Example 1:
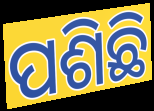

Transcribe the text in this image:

ପଶିଛି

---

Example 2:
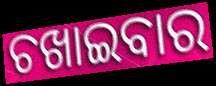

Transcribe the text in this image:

ଚଖାଇବାର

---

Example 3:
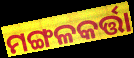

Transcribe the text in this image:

ମଙ୍ଗଳକର୍ତ୍ତା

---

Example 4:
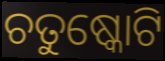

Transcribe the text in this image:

ଚତୁଷ୍କୋଟି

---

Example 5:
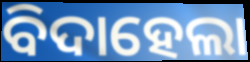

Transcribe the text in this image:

ବିଦାହେଲା